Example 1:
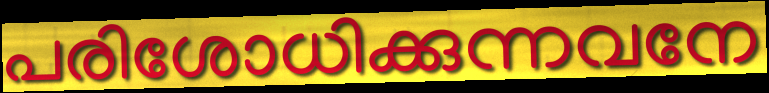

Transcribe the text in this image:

പരിശോധിക്കുന്നവനേ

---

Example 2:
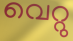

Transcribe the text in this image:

വെറ്റു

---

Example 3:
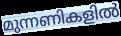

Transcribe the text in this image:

മുന്നണികളിൽ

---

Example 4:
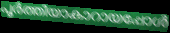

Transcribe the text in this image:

പൂർത്തിയാകാറായപ്പോൾ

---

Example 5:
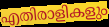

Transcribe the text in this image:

എതിരാളികളും